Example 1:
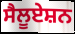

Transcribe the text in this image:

ਸੈਲੂਏਸ਼ਨ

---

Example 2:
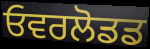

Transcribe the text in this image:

ਓਵਰਲੋਡਡ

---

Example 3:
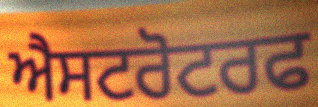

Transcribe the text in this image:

ਐਸਟਰੋਟਰਫ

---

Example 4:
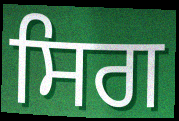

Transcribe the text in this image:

ਸਿਗ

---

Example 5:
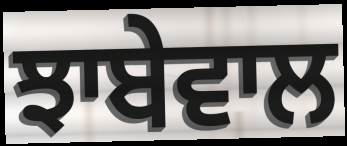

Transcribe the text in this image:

ਝਾਬੇਵਾਲ